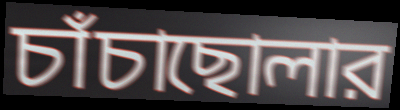
চাঁচাছোলার